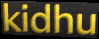
kidhu